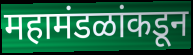
महामंडळांकडून